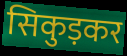
सिकुड़कर